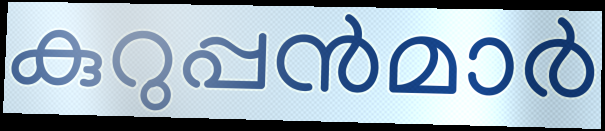
കുറുപ്പൻമാർ